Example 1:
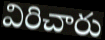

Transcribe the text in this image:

విరిచారు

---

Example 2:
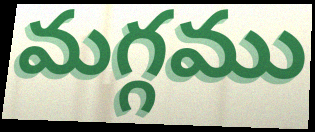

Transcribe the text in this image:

మగ్గము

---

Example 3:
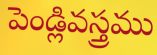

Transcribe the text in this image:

పెండ్లివస్త్రము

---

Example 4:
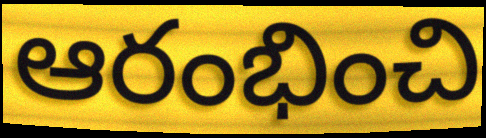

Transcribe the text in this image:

ఆరంభించి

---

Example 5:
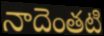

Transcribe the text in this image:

నాదెంతటి